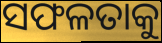
ସଫଳତାକୁ